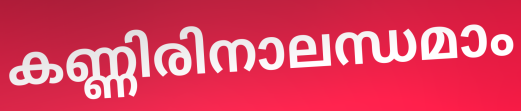
കണ്ണിരിനാലന്ധമാം